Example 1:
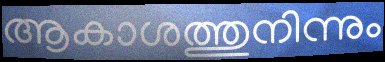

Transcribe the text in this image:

ആകാശത്തുനിന്നും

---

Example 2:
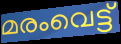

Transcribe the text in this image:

മരംവെട്ട്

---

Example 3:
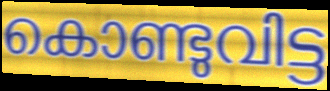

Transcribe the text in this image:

കൊണ്ടുവിട്ട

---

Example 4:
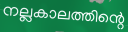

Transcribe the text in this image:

നല്ലകാലത്തിന്റെ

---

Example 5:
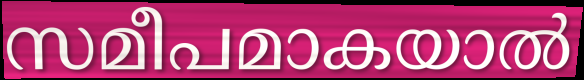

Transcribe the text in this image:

സമീപമാകയാൽ